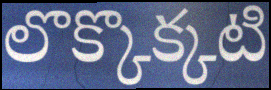
లొక్కొక్కటి